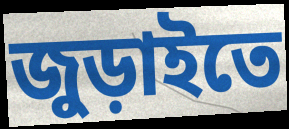
জুড়াইতে